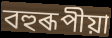
বহুৰূপীয়া